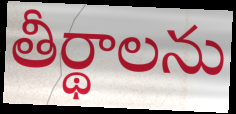
తీర్థాలను